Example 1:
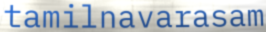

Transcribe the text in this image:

tamilnavarasam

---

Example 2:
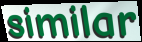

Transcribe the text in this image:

similar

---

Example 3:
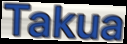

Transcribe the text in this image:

Takua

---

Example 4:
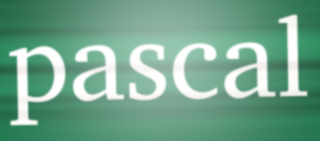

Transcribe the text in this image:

pascal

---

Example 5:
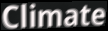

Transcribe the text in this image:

Climate